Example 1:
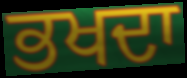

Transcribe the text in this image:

ਭਖਦਾ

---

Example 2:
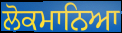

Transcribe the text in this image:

ਲੋਕਮਾਨਿਆ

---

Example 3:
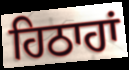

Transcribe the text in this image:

ਹਿਠਾਹਾਂ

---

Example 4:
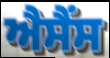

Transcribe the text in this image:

ਐਸੈਂਸ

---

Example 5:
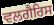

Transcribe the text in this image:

ਵਲਗੈਰਿਸ